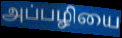
அப்பழியை